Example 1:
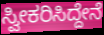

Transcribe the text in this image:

ಸ್ವೀಕರಿಸಿದ್ದೇನೆ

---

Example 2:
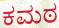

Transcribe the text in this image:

ಕಮಠ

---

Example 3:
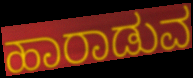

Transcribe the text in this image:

ಹಾರಾಡುವ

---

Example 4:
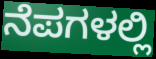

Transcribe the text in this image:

ನೆಪಗಳಲ್ಲಿ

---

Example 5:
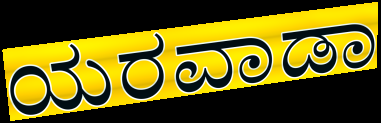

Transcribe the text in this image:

ಯರವಾಡಾ